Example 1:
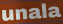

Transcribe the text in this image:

unala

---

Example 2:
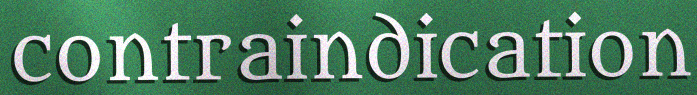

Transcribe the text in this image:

contraindication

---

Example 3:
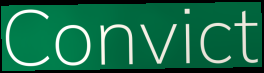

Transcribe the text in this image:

Convict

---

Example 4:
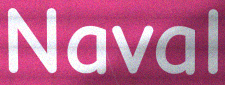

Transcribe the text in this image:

Naval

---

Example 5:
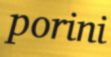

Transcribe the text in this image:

porini